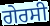
ਗੇਰਸੀ